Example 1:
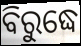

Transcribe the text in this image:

ବିରୁଦ୍ଧେ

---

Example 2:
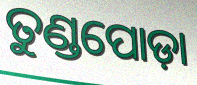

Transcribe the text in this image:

ତୁଣ୍ଡପୋଡ଼ା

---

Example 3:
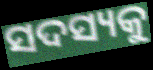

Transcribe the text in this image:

ସଦସ୍ୟକୁ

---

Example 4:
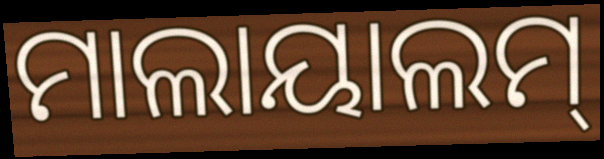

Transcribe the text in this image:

ମାଲାୟାଲମ୍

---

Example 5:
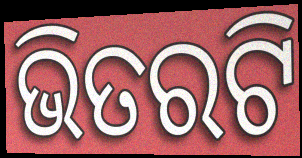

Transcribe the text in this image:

ଭିତରଟି